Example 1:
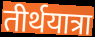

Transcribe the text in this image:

तीर्थयात्रा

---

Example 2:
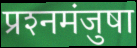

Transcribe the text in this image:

प्रश्नमंजुषा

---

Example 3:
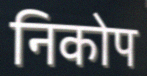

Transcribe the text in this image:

निकोप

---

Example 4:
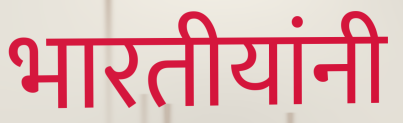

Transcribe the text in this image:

भारतीयांनी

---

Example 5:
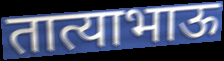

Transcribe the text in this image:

तात्याभाऊ